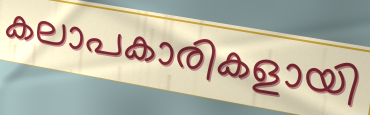
കലാപകാരികളായി